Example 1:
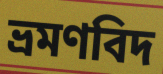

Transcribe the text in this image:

ভ্রমণবিদ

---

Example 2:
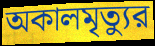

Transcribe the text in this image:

অকালমৃত্যুর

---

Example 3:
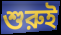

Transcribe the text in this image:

শুরুই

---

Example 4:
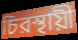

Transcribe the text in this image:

চিরস্থায়ী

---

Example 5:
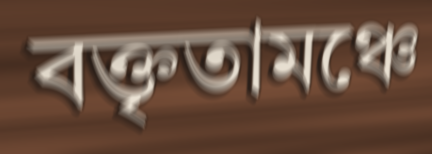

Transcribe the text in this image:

বক্তৃতামঞ্চে